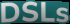
DSLs